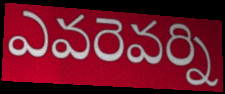
ఎవరెవర్ని